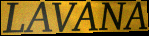
LAVANA